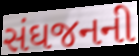
સંઘજનની